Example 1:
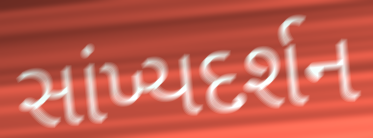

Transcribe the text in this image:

સાંખ્યદર્શન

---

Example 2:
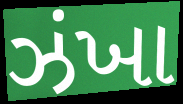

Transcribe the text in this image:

ઝંખા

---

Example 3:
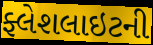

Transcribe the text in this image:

ફ્લેશલાઇટની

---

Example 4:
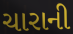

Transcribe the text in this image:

ચારાની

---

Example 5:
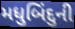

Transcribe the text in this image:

મધુબિંદુની